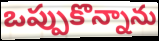
ఒప్పుకొన్నాను